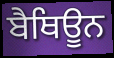
ਬੈਥਿਊਨ